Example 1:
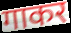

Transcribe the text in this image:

गाकर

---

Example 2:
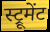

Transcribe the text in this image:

स्ट्रूमेंट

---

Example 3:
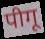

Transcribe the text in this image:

पीगू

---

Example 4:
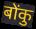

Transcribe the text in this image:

बोंकु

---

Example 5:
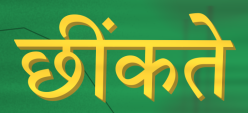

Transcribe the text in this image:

छींकते